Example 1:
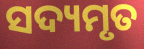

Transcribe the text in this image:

ସଦ୍ୟମୃତ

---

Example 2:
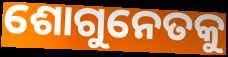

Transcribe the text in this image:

ଶୋଗୁନେତକୁ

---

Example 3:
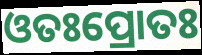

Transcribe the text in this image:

ଓତଃପ୍ରୋତଃ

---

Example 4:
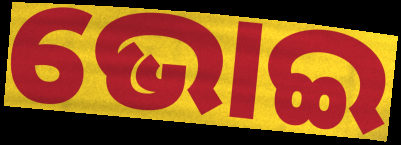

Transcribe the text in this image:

ଭୋଇ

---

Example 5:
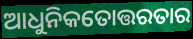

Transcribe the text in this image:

ଆଧୁନିକତୋତ୍ତରତାର